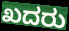
ಖದರು